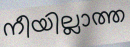
നീയില്ലാത്ത